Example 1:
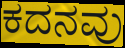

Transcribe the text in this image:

ಕದನವು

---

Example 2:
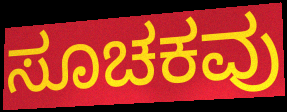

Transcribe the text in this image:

ಸೂಚಕವು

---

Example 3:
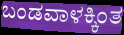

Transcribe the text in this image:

ಬಂಡವಾಳಕ್ಕಿಂತ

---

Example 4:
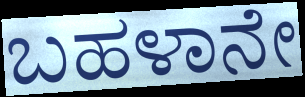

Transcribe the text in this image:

ಬಹಳಾನೇ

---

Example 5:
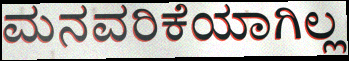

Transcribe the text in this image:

ಮನವರಿಕೆಯಾಗಿಲ್ಲ